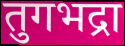
तुगभद्रा